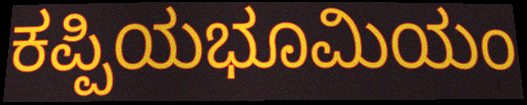
ಕಪ್ಪಿಯಭೂಮಿಯಂ